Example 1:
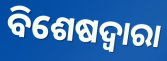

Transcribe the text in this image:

ବିଶେଷଦ୍ଵାରା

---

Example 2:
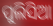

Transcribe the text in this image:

ପୁଲିସିଆ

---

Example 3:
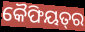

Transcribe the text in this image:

କୈଫିୟତ୍‌ର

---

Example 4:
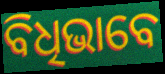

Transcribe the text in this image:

ବିଧିଭାବେ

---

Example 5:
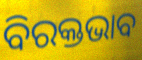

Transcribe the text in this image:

ବିରକ୍ତଭାବ